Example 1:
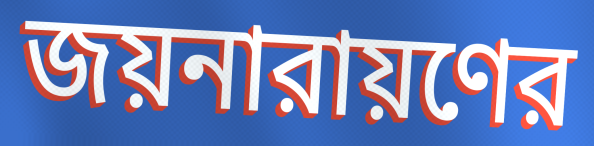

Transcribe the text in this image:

জয়নারায়ণের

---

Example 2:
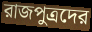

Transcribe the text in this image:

রাজপুত্রদের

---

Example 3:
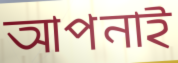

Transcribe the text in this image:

আপনাই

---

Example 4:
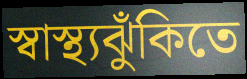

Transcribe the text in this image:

স্বাস্থ্যঝুঁকিতে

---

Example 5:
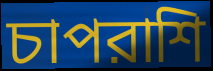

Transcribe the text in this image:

চাপরাশি